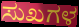
ಸುಖಗಳ